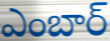
ఎంబార్